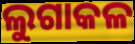
ଲୁଗାକଳ